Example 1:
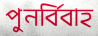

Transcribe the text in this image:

পুনৰ্বিবাহ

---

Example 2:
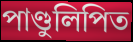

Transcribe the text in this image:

পাণ্ডুলিপিত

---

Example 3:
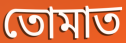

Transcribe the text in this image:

তোমাত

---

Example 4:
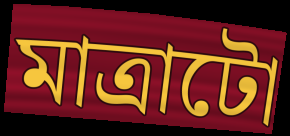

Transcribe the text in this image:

মাত্ৰাটো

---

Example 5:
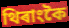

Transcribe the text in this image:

থিৰাংকৈ